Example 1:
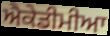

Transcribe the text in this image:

ਐਕੇਡੀਮੀਆ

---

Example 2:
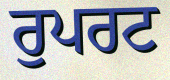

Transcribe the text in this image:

ਰੁਪਰਟ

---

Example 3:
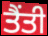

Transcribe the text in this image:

ਤੈਂਤੀ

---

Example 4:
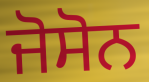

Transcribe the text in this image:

ਜੋਸੋਨ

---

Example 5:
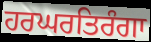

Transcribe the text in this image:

ਹਰਘਰਤਿਰੰਗਾ